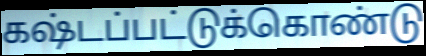
கஷ்டப்பட்டுக்கொண்டு